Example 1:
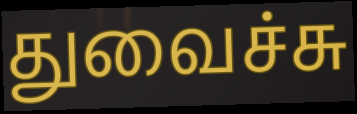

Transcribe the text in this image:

துவைச்சு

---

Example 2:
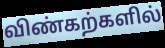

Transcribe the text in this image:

விண்கற்களில்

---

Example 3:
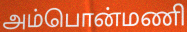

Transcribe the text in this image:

அம்பொன்மணி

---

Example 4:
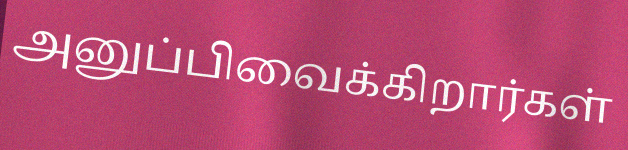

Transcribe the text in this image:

அனுப்பிவைக்கிறார்கள்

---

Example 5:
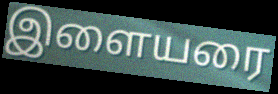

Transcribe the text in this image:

இளையரை